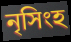
নৃসিংহ